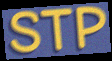
STP